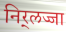
निर्लज्जा